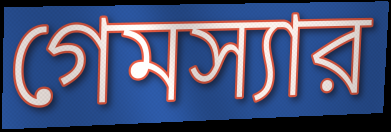
গেমস্যার